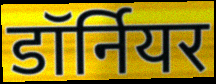
डॉर्नियर